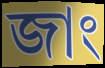
জাং